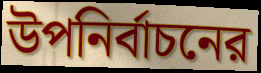
উপনির্বাচনের